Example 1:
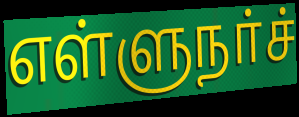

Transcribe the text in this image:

எள்ளுநர்ச்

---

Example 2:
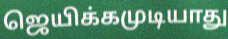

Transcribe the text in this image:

ஜெயிக்கமுடியாது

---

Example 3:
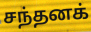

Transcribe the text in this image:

சந்தனக்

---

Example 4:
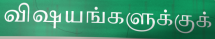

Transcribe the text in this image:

விஷயங்களுக்குக்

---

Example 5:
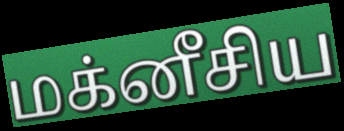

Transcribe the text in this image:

மக்னீசிய